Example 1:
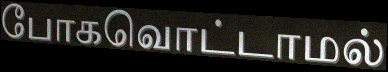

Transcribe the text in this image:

போகவொட்டாமல்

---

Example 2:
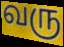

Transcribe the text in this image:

வரு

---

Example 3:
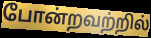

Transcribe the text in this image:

போன்றவற்றில்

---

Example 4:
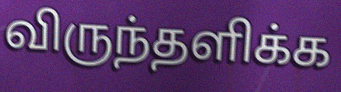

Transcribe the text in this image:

விருந்தளிக்க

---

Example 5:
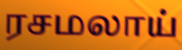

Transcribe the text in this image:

ரசமலாய்